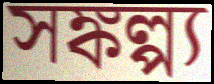
সঙ্কল্প্য